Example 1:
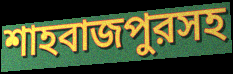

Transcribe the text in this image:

শাহবাজপুরসহ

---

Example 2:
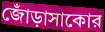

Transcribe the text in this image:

জোঁড়াসাকোর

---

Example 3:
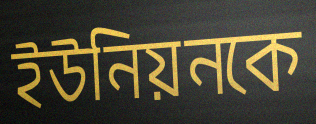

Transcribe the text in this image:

ইউনিয়নকে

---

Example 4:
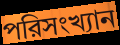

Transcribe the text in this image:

পরিসংখ্য়ান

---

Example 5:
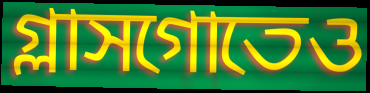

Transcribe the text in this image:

গ্লাসগোতেও